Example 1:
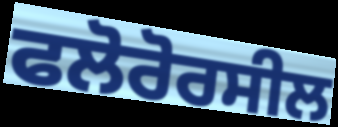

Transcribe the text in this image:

ਫਲੋਰੋਰਸੀਲ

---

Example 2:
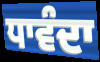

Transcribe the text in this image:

ਧਾਵੰਦਾ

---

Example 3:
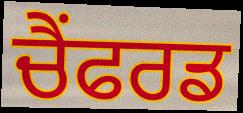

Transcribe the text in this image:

ਚੈਂਫਰਡ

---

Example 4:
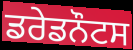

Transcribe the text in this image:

ਡਰੇਡਨੌਟਸ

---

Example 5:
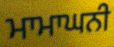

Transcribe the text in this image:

ਮਾਮਾਘਨੀ